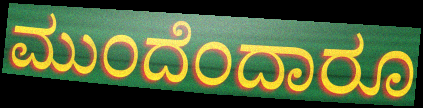
ಮುಂದೆಂದಾರೂ